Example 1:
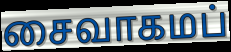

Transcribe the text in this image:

சைவாகமப்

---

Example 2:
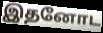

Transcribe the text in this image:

இதனோட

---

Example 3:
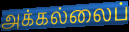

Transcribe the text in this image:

அக்கல்லைப்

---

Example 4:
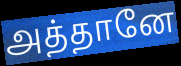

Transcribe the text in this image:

அத்தானே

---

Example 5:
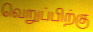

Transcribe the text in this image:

வெறுப்பிற்கு